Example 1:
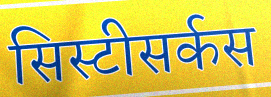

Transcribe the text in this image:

सिस्टीसर्कस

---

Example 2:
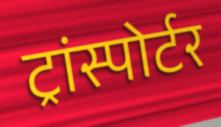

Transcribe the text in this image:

ट्रांस्पोर्टर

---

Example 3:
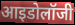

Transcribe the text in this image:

आइडोलॉजी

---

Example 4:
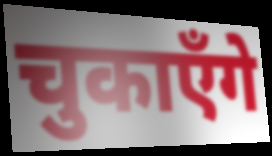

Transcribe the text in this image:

चुकाएँगे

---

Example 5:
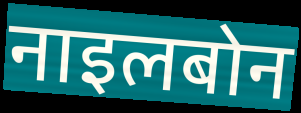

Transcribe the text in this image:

नाइलबोन